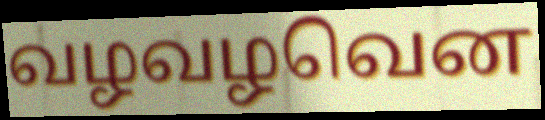
வழவழவென